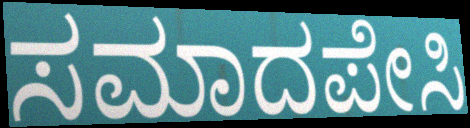
ಸಮಾದಪೇಸಿ